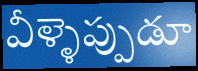
వీళ్ళెప్పుడూ